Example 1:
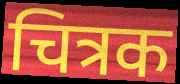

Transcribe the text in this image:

चित्रक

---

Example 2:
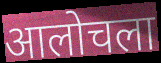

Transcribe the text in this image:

आलोचला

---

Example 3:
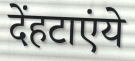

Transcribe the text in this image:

देंहटाएंये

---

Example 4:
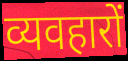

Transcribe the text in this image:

व्यवहारों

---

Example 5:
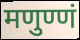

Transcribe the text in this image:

मणुण्णं